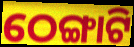
ଠେଙ୍ଗାଟି